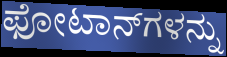
ಫೋಟಾನ್‌ಗಳನ್ನು